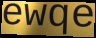
ewqe